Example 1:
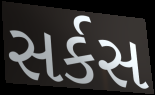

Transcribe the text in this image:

સર્કસ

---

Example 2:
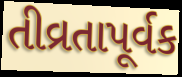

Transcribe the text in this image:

તીવ્રતાપૂર્વક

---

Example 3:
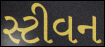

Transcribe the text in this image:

સ્ટીવન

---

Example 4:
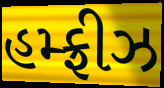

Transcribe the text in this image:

હમ્ફ્રીઝ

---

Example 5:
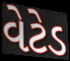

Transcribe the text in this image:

વેટેડ